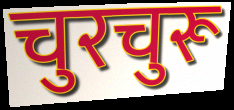
चुरचुरू